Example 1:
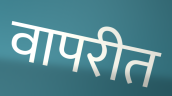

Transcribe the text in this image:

वापरीत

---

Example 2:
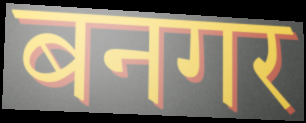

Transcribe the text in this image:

बनगर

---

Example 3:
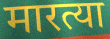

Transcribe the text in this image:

मारत्या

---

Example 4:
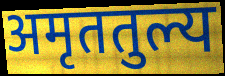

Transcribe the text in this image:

अमृततुल्य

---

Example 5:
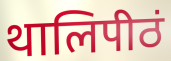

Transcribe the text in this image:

थालिपीठं